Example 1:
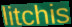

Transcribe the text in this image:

litchis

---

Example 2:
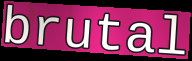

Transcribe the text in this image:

brutal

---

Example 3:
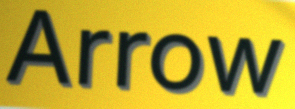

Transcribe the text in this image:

Arrow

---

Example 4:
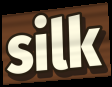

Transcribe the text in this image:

silk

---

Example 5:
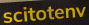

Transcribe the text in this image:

scitotenv